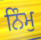
ਨਿੰਮੁ